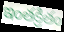
ఇంతక్రితం